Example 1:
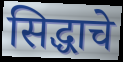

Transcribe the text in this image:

सिद्धाचे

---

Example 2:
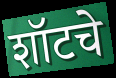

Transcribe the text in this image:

शॉटचे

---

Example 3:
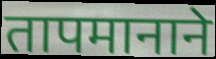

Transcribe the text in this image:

तापमानाने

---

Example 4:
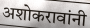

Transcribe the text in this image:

अशोकरावांनी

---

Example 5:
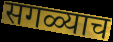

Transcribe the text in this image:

सगळ्याच